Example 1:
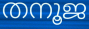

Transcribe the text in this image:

തനൂജ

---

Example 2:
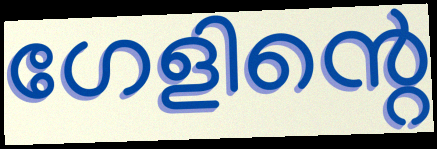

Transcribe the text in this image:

ഗേളിന്റെ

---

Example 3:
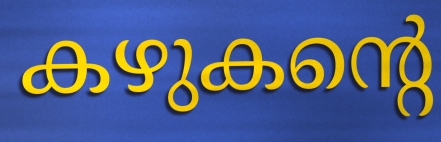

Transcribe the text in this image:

കഴുകന്റെ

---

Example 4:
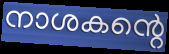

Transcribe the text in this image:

നാശകന്റെ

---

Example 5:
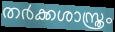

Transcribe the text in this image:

തർക്കശാസ്ത്രം